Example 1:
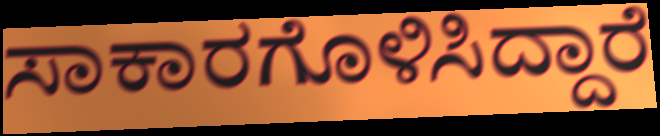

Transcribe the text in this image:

ಸಾಕಾರಗೊಳಿಸಿದ್ದಾರೆ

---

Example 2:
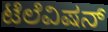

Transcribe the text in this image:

ಟೆಲೆವಿಷನ್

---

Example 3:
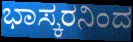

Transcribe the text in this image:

ಭಾಸ್ಕರನಿಂದ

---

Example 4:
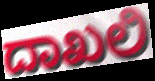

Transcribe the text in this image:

ದಾಖಲಿ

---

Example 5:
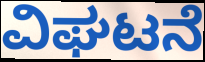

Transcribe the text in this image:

ವಿಘಟನೆ